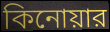
কিনোয়ার